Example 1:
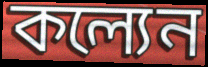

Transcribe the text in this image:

কল্যেন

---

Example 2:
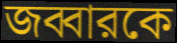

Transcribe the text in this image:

জব্বারকে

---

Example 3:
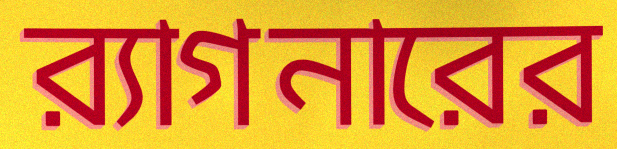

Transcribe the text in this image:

র‍্যাগনারের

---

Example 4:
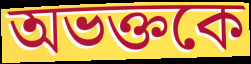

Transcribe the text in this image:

অভক্তকে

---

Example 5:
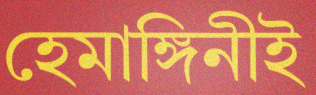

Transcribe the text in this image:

হেমাঙ্গিনীই